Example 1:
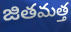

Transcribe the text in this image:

జితమత్త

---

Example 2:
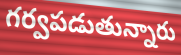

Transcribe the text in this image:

గర్వపడుతున్నారు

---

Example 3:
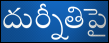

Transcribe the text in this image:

దుర్నీతిపై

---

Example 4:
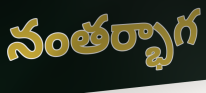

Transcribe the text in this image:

నంతర్భాగ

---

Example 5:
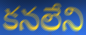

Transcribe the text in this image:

కనలేని